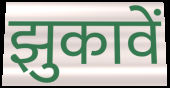
झुकावें